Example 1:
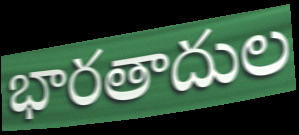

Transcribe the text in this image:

భారతాదుల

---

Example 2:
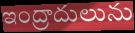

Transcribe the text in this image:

ఇంద్రాదులును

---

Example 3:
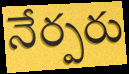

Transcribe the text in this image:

నేర్పరు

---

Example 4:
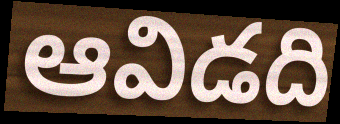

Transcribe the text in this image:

ఆవిడది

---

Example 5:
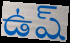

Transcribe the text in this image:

ఉష్